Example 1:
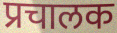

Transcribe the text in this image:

प्रचालक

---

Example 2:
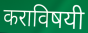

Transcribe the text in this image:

कराविषयी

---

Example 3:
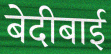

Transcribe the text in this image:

बेदीबाई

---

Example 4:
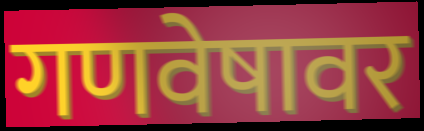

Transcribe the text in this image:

गणवेषावर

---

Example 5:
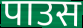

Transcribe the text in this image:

पाउस